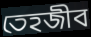
তেহজীব